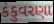
કંકુવરણા